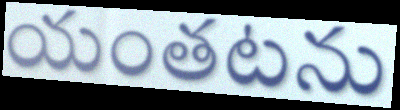
యంతటను